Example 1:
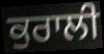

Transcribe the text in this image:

ਕੁਰਾਲੀ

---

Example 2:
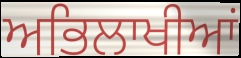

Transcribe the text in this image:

ਅਭਿਲਾਖੀਆਂ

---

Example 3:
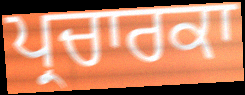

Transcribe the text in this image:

ਪ੍ਰਚਾਰਕਾ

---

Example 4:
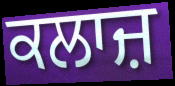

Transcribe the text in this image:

ਕਲਾਜ਼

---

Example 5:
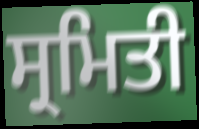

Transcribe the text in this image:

ਸ੍ਰਮਿਤੀ